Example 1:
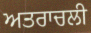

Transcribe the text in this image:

ਅਤਰਾਚਲੀ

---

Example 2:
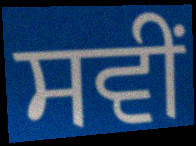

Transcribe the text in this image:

ਸਵੀਂ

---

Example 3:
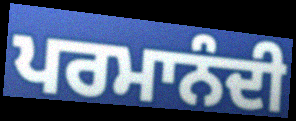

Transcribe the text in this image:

ਪਰਮਾਨੰਦੀ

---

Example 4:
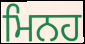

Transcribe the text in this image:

ਮਿਨਹ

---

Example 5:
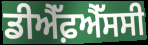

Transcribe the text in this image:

ਡੀਐੱਫ਼ਐੱਸਸੀ